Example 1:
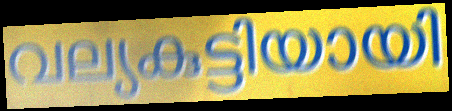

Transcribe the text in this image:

വല്യകുട്ടിയായി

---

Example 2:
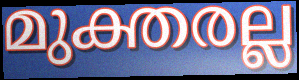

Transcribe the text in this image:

മുക്തരല്ല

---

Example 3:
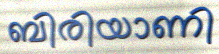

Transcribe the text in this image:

ബിരിയാണി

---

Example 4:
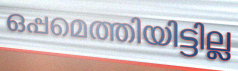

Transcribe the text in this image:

ഒപ്പമെത്തിയിട്ടില്ല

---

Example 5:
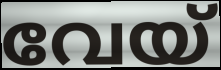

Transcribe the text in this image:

വേയ്